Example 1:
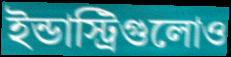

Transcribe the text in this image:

ইন্ডাস্ট্রিগুলোও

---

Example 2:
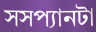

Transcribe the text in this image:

সসপ্যানটা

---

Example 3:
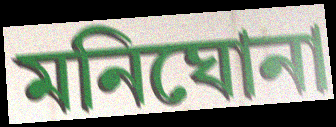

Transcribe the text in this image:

মনিঘোনা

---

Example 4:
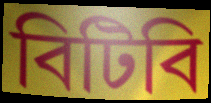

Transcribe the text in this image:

বিটিবি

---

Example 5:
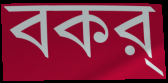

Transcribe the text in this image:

বকর্